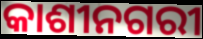
କାଶୀନଗରୀ